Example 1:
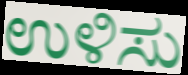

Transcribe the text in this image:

ಉಳಿಸು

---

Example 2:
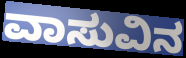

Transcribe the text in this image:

ವಾಸುವಿನ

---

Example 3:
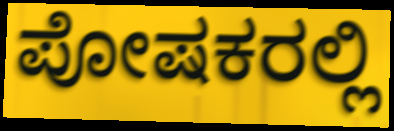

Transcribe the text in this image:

ಪೋಷಕರಲ್ಲಿ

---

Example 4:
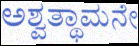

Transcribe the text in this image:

ಅಶ್ವತ್ಥಾಮನೇ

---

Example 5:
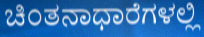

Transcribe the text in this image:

ಚಿಂತನಾಧಾರೆಗಳಲ್ಲಿ